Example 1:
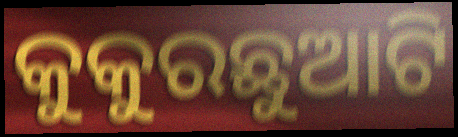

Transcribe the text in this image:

କୁକୁରଛୁଆଟି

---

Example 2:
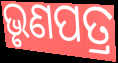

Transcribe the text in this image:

ଭୃଣପତ୍ର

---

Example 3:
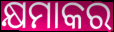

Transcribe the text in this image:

କ୍ଷମାକର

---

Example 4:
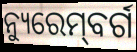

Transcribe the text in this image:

ନ୍ୟୁରେମ୍‌ବର୍ଗ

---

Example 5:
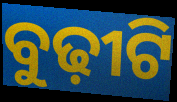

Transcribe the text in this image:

ବୁଢ଼ୀଟି